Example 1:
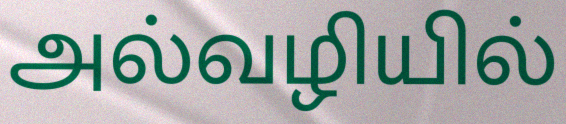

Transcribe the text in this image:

அல்வழியில்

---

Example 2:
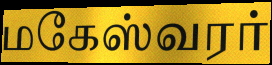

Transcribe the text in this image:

மகேஸ்வரர்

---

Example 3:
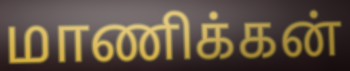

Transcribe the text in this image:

மாணிக்கன்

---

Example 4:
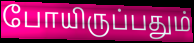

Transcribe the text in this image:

போயிருப்பதும்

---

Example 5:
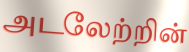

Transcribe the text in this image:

அடலேற்றின்